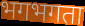
भगभगता